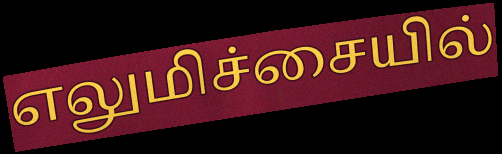
எலுமிச்சையில்